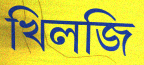
খিলজি